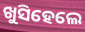
ଖୁସିହେଲେ